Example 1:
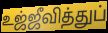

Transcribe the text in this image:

உஜ்ஜீவித்துப்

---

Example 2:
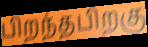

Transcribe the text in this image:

பிறந்தபிறகு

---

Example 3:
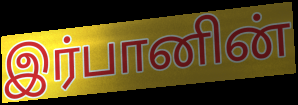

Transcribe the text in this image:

இர்பானின்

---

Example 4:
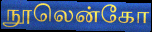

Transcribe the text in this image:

நூலென்கோ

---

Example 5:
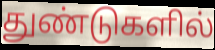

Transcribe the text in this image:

துண்டுகளில்